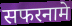
सफरनामे